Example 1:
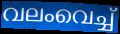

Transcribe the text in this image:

വലംവെച്ച്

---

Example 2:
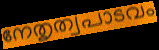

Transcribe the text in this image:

നേതൃത്വപാടവം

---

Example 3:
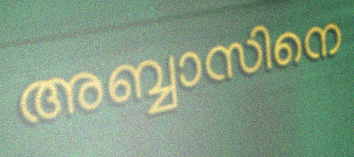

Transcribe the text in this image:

അബ്ബാസിനെ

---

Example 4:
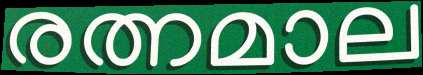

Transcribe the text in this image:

രത്നമാല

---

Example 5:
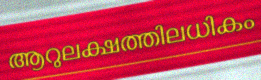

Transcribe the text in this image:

ആറുലക്ഷത്തിലധികം